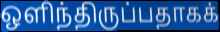
ஒளிந்திருப்பதாகக்